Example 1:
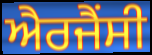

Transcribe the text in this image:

ਐਰਜੈਂਸੀ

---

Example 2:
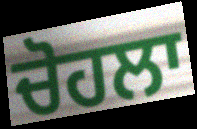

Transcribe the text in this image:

ਚੋਹਲਾ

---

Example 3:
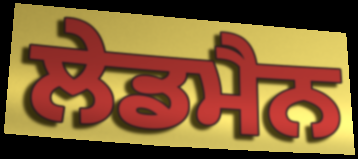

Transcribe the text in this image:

ਲੇਡਮੈਨ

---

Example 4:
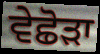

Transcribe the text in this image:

ਵੇਛੋੜਾ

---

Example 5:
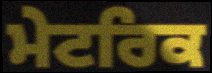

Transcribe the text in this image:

ਮੇਟਰਿਕ